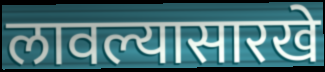
लावल्यासारखे